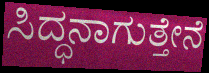
ಸಿದ್ಧನಾಗುತ್ತೇನೆ